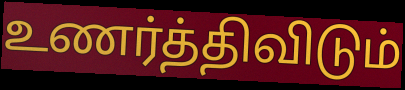
உணர்த்திவிடும்